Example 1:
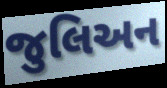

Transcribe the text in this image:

જુલિઅન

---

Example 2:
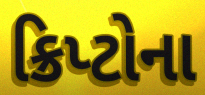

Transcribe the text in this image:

ક્રિપ્ટોના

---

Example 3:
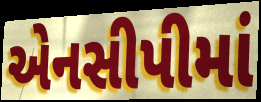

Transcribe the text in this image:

એનસીપીમાં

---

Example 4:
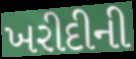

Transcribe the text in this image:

ખરીદીની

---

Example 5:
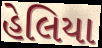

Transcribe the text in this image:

હેલિયા